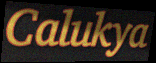
Calukya